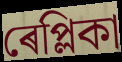
ৰেপ্লিকা